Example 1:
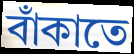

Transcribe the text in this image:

বাঁকাতে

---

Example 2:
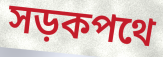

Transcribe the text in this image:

সড়কপথে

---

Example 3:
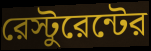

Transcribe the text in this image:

রেস্টুরেন্টের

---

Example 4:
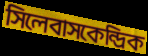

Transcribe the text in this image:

সিলেবাসকেন্দ্রিক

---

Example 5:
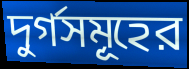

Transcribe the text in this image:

দুর্গসমূহের